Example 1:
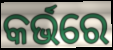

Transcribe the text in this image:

କର୍ଭରେ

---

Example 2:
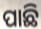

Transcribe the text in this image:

ପାଛି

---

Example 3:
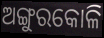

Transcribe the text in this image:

ଅଙ୍ଗୁରକୋଳି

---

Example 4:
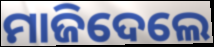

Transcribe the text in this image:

ମାଜିଦେଲେ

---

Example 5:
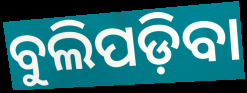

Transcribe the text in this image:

ବୁଲିପଡ଼ିବା